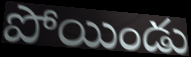
పోయిండు